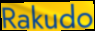
Rakudo